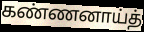
கண்ணனாய்த்